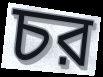
চর